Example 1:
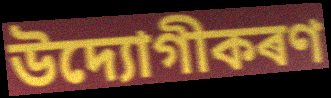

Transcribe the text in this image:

উদ্যোগীকৰণ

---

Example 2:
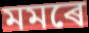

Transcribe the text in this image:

মমৰে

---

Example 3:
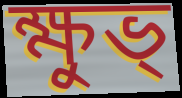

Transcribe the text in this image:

ক্ষুভ্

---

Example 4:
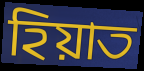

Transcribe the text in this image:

হিয়াত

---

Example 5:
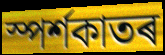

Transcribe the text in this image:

স্পৰ্শকাতৰ